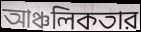
আঞ্চলিকতার